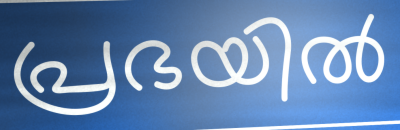
പ്രഭയിൽ